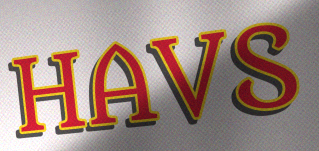
HAVS